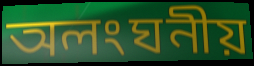
অলংঘনীয়